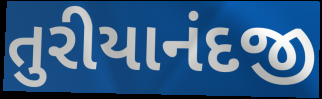
તુરીયાનંદજી